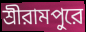
শ্রীরামপুরে